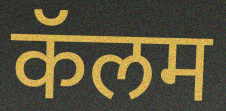
कॅलम